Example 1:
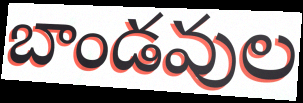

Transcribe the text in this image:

బాండవుల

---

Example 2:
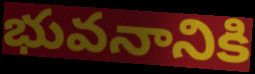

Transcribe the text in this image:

భువనానికి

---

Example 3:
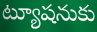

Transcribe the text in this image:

ట్యూషనుకు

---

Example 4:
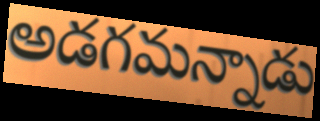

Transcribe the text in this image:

అడగమన్నాడు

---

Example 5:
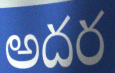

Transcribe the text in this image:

అదర